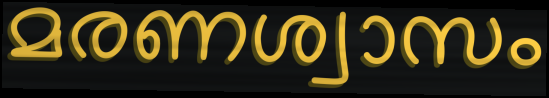
മരണശ്വാസം